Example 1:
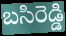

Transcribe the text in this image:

బసిరెడ్డి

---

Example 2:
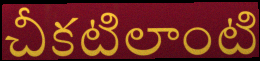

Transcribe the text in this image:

చీకటిలాంటి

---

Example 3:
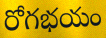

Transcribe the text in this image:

రోగభయం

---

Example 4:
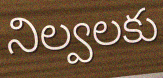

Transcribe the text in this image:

నిల్వలకు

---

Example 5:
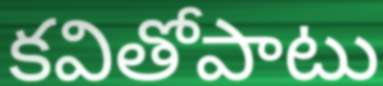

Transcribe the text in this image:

కవితోపాటు